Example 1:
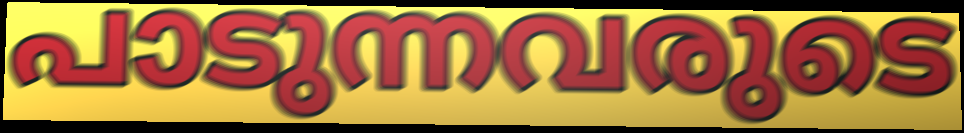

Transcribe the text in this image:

പാടുന്നവരുടെ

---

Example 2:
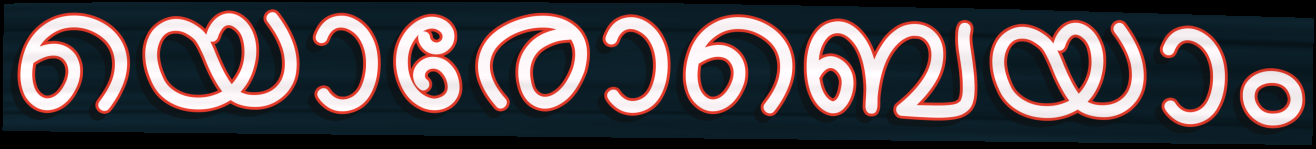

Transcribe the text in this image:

യൊരോബെയാം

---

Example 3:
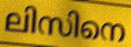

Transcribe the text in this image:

ലിസിനെ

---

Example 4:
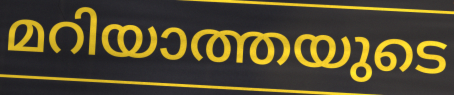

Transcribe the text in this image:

മറിയാത്തയുടെ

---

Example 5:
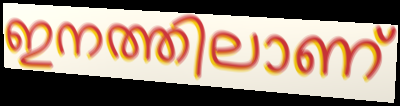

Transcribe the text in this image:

ഇനത്തിലാണ്